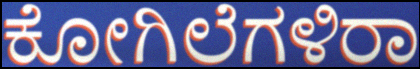
ಕೋಗಿಲೆಗಳಿರಾ